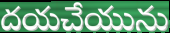
దయచేయును